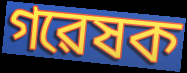
গৱেষক